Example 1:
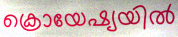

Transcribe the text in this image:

ക്രൊയേഷ്യയിൽ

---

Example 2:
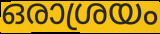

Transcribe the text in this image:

ഒരാശ്രയം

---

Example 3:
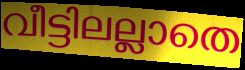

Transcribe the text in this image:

വീട്ടിലല്ലാതെ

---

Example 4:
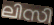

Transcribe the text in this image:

ലിസി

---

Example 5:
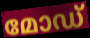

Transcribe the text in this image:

മോഡ്